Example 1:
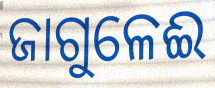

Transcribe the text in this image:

ଜାଗୁଳେଈ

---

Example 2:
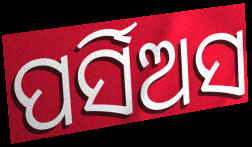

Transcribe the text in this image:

ପର୍ସିଅସ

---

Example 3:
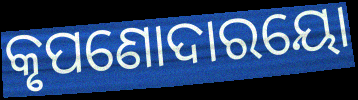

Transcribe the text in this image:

କୃପଣୋଦାରୟୋ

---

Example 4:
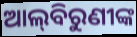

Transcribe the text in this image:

ଆଲ୍‌ବିରୁଣୀଙ୍କ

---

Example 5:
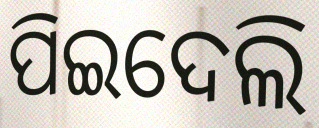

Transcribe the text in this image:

ପିଇଦେଲି